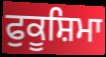
ਫੁਕੂਸ਼ਿਮਾ